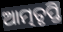
ଆତ୍ମତୃପ୍ତି